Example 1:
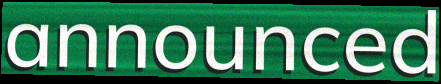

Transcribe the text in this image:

announced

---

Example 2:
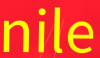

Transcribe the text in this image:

nile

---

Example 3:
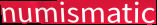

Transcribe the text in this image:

numismatic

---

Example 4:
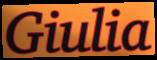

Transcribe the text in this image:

Giulia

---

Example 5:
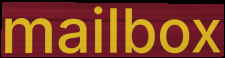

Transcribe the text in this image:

mailbox